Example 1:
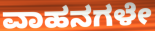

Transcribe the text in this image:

ವಾಹನಗಳೇ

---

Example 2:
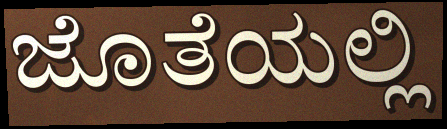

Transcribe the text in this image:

ಜೊತೆಯಲ್ಲಿ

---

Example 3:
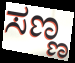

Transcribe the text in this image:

ಸಣ್ಣ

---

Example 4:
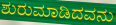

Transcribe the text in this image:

ಶುರುಮಾಡಿದವನು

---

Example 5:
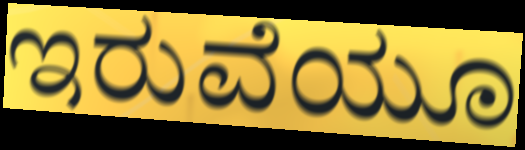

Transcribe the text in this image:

ಇರುವೆಯೂ